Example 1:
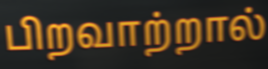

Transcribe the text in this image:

பிறவாற்றால்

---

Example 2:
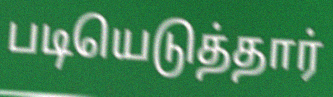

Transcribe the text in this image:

படியெடுத்தார்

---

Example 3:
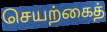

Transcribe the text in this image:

செயற்கைத்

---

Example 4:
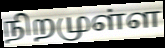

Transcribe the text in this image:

நிறமுள்ள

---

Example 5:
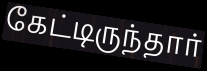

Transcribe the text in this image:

கேட்டிருந்தார்